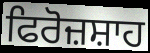
ਫਿਰੋਜ਼ਸ਼ਾਹ